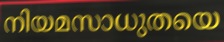
നിയമസാധുതയെ